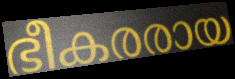
ഭീകരരായ